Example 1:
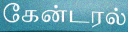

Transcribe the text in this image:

கேன்டரல்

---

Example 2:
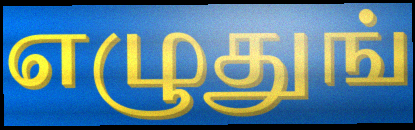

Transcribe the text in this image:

எழுதுங்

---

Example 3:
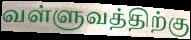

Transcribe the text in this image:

வள்ளுவத்திற்கு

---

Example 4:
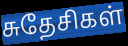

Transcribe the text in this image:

சுதேசிகள்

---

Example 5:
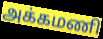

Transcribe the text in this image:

அக்கமணி